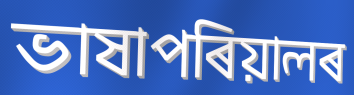
ভাষাপৰিয়ালৰ